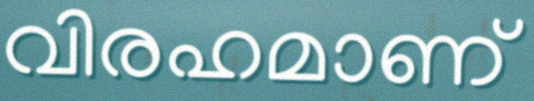
വിരഹമാണ്